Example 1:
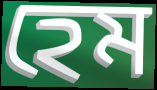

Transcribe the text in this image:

হেম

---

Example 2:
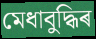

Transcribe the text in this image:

মেধাবুদ্ধিৰ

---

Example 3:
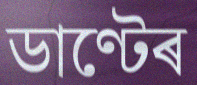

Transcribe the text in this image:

ডাণ্টেৰ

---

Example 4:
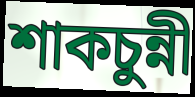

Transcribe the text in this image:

শাকচুন্নী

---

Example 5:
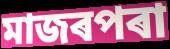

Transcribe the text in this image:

মাজৰপৰা